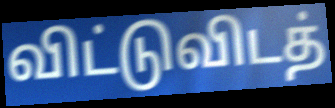
விட்டுவிடத்